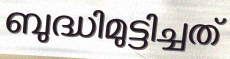
ബുദ്ധിമുട്ടിച്ചത്